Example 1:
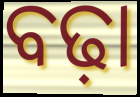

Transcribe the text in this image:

ବଢ଼ା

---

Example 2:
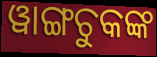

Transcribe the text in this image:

ୱାଙ୍ଗଚୁକଙ୍କ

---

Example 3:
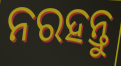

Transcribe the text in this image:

ନରହନ୍ତୁ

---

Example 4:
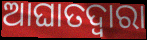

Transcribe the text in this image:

ଆଘାତଦ୍ୱାରା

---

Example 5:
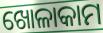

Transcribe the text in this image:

ଖୋଳାକାମ